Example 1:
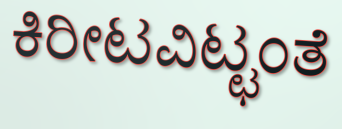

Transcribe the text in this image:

ಕಿರೀಟವಿಟ್ಟಂತೆ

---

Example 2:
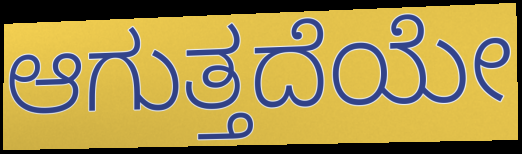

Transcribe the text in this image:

ಆಗುತ್ತದೆಯೇ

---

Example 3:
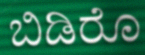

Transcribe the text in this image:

ಬಿಡಿರೊ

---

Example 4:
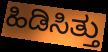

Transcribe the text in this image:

ಹಿಡಿಸಿತ್ತು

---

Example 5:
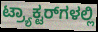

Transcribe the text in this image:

ಟ್ರ್ಯಾಕ್ಟರ್‌ಗಳಲ್ಲಿ